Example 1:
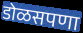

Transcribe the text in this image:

डोळसपणा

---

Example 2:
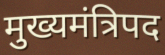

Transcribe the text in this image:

मुख्यमंत्रिपद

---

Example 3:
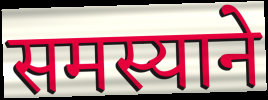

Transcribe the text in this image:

समस्याने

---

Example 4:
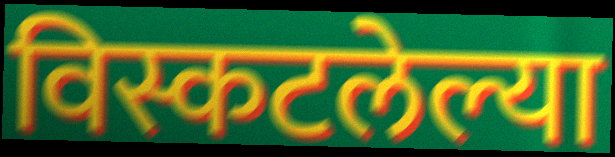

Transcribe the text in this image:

विस्कटलेल्या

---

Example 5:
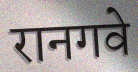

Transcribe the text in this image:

रानगवे